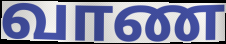
வாண